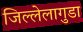
जिल्लेलागुडा